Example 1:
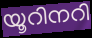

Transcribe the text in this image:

യൂറിനറി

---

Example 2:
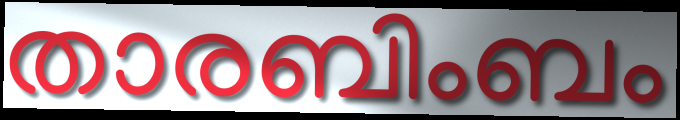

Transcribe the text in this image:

താരബിംബം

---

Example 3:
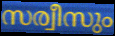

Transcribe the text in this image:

സര്വീസും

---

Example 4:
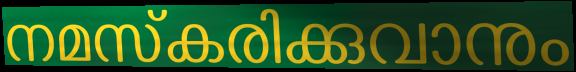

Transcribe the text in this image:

നമസ്‌കരിക്കുവാനും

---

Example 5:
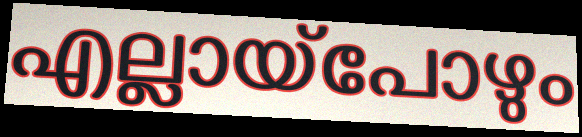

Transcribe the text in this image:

എല്ലായ്പോഴും